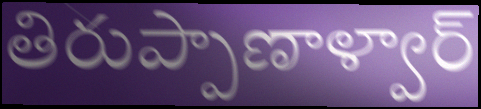
తిరుప్పాణాళ్వార్